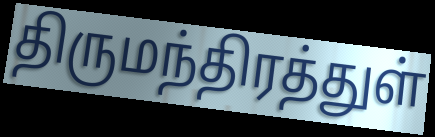
திருமந்திரத்துள்